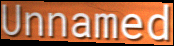
Unnamed